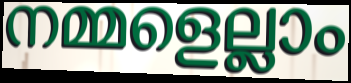
നമ്മളെല്ലാം